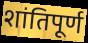
शांतिपूर्ण